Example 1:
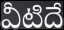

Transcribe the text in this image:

వీటిదే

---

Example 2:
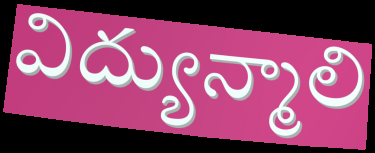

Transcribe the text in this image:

విద్యున్మాలి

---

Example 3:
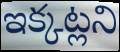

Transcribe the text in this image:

ఇక్కట్లని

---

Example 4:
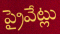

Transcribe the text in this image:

ప్రైవేట్లు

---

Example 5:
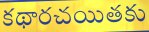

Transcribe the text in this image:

కథారచయితకు